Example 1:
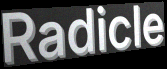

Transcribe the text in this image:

Radicle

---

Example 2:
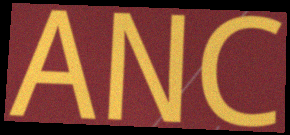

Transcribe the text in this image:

ANC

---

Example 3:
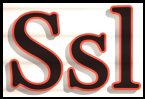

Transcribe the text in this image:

Ssl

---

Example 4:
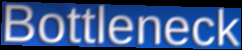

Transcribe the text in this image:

Bottleneck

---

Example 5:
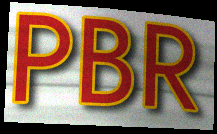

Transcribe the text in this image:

PBR